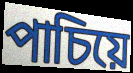
পাচিয়ে